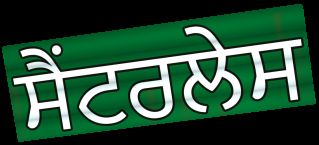
ਸੈਂਟਰਲੇਸ